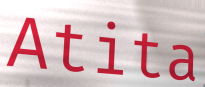
Atita